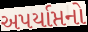
અપર્યાપ્તનો